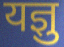
यज्ञु